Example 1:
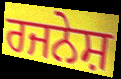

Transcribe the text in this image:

ਰਜਨੇਸ਼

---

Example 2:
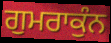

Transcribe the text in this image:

ਗੁਮਰਾਕੁੰਨ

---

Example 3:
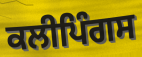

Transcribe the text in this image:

ਕਲੀਪਿੰਗਸ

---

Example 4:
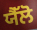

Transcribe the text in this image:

ਯੈੱਲੋ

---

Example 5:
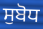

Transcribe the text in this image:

ਸੁਬੋਧ